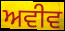
ਅਵੀਵ